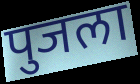
पुजला